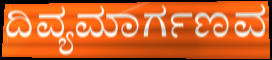
ದಿವ್ಯಮಾರ್ಗಣವ